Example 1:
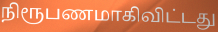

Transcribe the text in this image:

நிரூபணமாகிவிட்டது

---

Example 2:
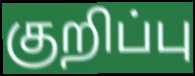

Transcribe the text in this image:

குறிப்பு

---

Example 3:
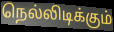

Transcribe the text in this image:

நெல்லிடிக்கும்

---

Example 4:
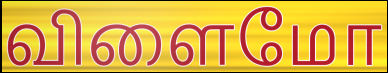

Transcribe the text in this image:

விளைமோ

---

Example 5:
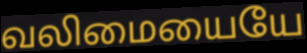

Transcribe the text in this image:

வலிமையையே